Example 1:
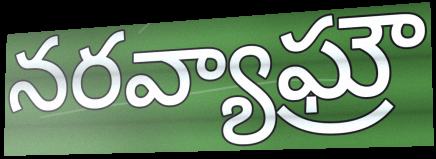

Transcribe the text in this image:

నరవ్యాఘ్రౌ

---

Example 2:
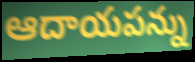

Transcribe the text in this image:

ఆదాయపన్ను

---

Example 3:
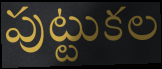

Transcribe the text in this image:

పుట్టుకల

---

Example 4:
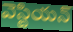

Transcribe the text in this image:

వెస్టియన్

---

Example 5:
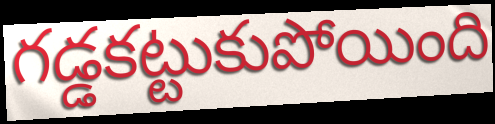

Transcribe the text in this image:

గడ్డకట్టుకుపోయింది